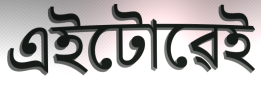
এইটোৱেই